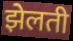
झेलती